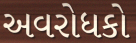
અવરોધકો